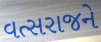
વત્સરાજને